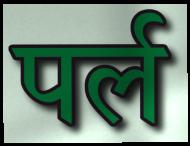
पर्ल